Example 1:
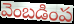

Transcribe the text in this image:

వెంబడింప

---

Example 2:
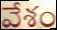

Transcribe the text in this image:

వేశం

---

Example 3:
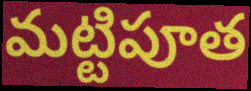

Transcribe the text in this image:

మట్టిపూత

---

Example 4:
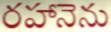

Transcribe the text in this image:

రహానెను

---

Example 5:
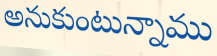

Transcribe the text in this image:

అనుకుంటున్నాము